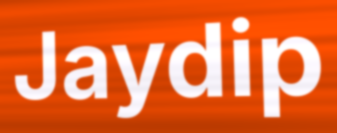
Jaydip